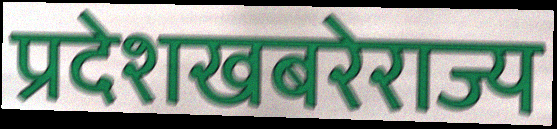
प्रदेशखबरेराज्य